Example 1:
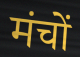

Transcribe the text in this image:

मंचों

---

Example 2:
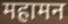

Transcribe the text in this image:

महामन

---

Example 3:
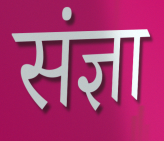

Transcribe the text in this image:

संज्ञा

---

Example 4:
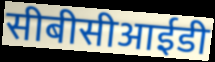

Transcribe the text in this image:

सीबीसीआईडी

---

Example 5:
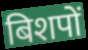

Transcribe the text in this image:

बिशपों